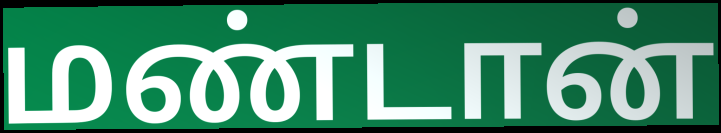
மண்டான்